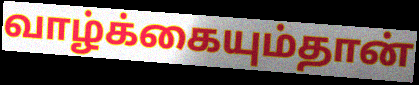
வாழ்க்கையும்தான்